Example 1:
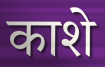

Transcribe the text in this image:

काशे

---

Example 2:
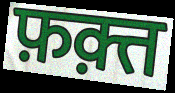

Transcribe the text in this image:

फ़क़्त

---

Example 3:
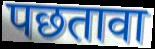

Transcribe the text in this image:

पछतावा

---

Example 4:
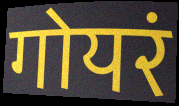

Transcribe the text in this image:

गोयरं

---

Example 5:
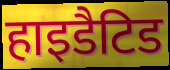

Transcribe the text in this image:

हाइडैटिड